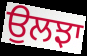
ਉਲਝਾ